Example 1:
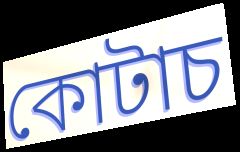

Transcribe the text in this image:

কোটাচ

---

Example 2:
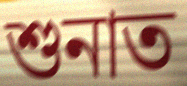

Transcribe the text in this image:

শুনাত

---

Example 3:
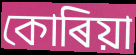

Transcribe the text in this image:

কোৰিয়া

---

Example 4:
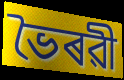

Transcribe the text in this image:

ভৈৰৱী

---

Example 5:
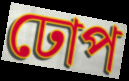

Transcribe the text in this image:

ঢোপ